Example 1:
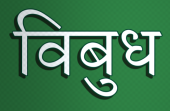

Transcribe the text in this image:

विबुध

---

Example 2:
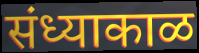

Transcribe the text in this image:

संध्याकाळ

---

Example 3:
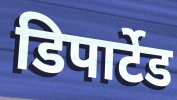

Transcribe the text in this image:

डिपार्टेड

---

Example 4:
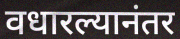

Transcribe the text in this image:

वधारल्यानंतर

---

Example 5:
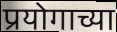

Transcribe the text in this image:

प्रयोगाच्या